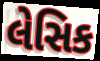
લેસિક